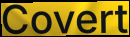
Covert